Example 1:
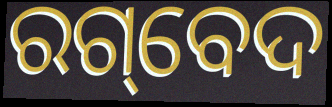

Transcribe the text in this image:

ରଗ୍‌ବେଦ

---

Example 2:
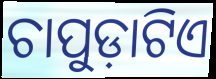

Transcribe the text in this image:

ଚାପୁଡ଼ାଟିଏ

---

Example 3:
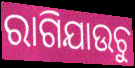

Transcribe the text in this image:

ରାଗିଯାଉଚୁ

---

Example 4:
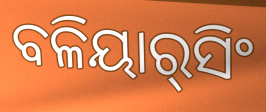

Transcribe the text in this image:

ବଳିୟାର୍‌ସିଂ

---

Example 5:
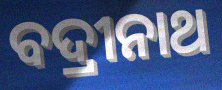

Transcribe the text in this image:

ବଦ୍ରୀନାଥ